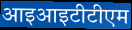
आइआइटीटीएम